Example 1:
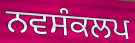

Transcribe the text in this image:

ਨਵਸੰਕਲਪ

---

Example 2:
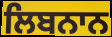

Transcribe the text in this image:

ਲਿਬਨਾਨ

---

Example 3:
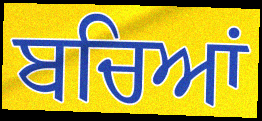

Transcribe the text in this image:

ਬਚਿਆਂ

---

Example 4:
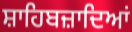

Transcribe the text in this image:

ਸ਼ਾਹਿਬਜ਼ਾਦਿਆਂ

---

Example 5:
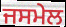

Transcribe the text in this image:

ਜਸਮੇਲ